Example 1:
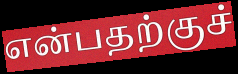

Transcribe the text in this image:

என்பதற்குச்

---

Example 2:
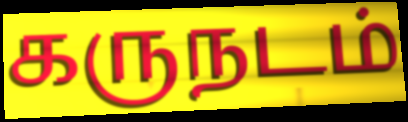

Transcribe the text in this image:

கருநடம்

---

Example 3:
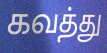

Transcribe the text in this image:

கவத்து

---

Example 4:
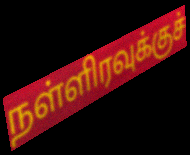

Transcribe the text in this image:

நள்ளிரவுக்குச்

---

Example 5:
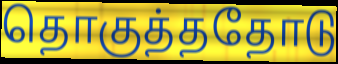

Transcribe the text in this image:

தொகுத்ததோடு